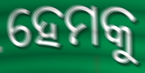
ହେମକୁ